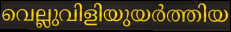
വെല്ലുവിളിയുയർത്തിയ